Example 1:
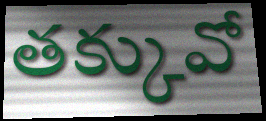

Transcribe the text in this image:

తక్కువో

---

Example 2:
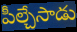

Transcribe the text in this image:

పీల్చేసాడు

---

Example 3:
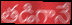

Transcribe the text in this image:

తడిగానే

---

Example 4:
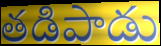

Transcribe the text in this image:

తడిపాడు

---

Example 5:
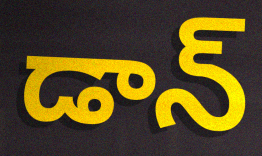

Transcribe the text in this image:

డాన్